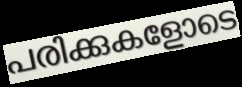
പരിക്കുകളോടെ